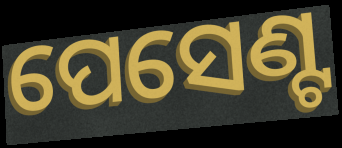
ପେସେଣ୍ଟ